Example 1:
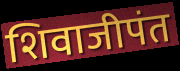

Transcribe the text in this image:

शिवाजीपंत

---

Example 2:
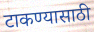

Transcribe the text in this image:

टाकण्यासाठी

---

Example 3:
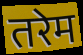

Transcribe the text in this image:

तरेम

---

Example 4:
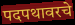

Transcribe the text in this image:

पदपथावरचे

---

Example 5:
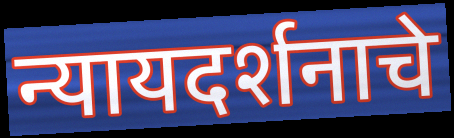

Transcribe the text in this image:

न्यायदर्शनाचे